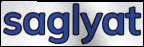
saglyat